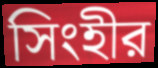
সিংহীর